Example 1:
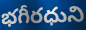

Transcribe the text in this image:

భగీరధుని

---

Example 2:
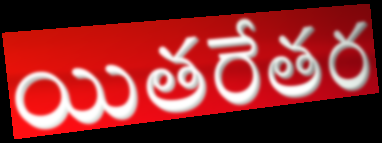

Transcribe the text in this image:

యితరేతర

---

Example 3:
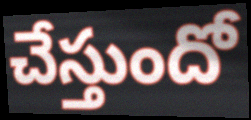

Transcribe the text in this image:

చేస్తుందో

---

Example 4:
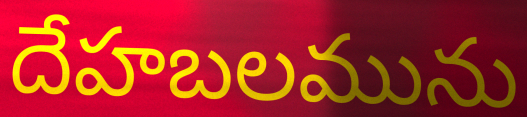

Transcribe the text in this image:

దేహబలమును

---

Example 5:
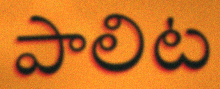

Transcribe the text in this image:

పాలిట